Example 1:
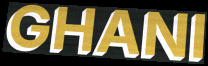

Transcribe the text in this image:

GHANI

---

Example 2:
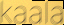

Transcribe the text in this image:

kaala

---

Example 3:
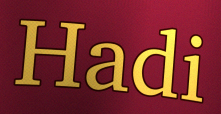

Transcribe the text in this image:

Hadi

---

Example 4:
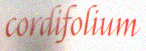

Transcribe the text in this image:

cordifolium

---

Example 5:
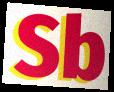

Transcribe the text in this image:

Sb